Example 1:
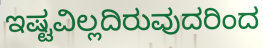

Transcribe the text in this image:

ಇಷ್ಟವಿಲ್ಲದಿರುವುದರಿಂದ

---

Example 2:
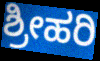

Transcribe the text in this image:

ಶ್ರೀಹರಿ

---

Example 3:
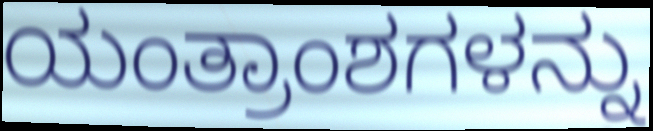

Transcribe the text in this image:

ಯಂತ್ರಾಂಶಗಳನ್ನು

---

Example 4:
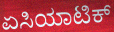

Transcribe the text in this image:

ಏಸಿಯಾಟಿಕ್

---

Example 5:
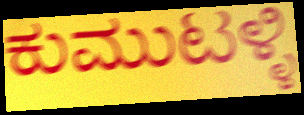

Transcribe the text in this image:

ಕುಮುಟಳ್ಳಿ